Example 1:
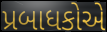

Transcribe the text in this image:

પ્રબાધકોએ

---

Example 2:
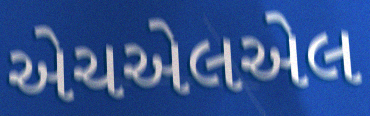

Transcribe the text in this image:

એચએલએલ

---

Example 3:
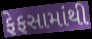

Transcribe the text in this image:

ફેફસામાંથી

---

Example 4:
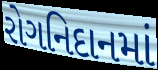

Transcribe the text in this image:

રોગનિદાનમાં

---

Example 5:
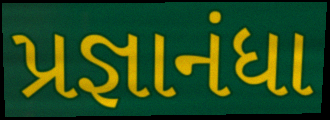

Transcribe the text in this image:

પ્રજ્ઞાનંધા